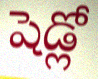
షెడ్లో